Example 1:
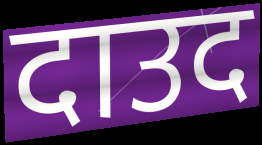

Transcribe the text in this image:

दाउद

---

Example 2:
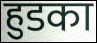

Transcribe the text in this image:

हुडका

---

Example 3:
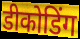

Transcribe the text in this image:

डीकोडिंग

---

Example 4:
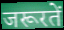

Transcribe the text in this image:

जरूरतें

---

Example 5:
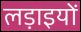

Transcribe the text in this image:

लड़ाइयों